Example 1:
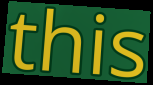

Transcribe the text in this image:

this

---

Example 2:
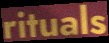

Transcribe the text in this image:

rituals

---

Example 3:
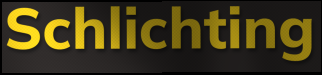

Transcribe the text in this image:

Schlichting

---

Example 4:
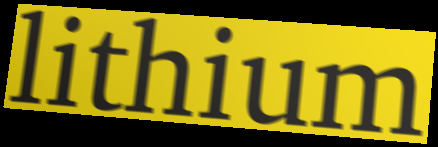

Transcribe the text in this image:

lithium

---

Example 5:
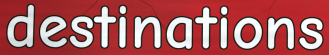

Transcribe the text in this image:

destinations